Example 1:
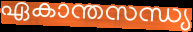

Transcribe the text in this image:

ഏകാന്തസന്ധ്യ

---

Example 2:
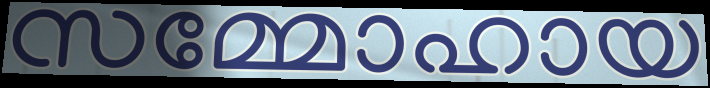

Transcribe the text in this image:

സമ്മോഹായ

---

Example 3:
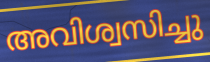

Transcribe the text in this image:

അവിശ്വസിച്ചു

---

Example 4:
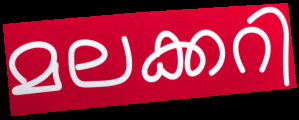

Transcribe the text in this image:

മലക്കറി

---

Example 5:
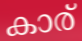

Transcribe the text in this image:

കാര്